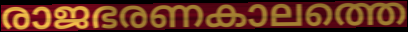
രാജഭരണകാലത്തെ